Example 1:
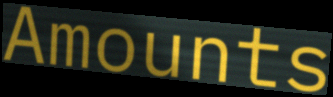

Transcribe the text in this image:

Amounts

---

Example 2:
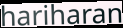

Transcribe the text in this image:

hariharan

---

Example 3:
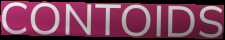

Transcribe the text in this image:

CONTOIDS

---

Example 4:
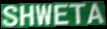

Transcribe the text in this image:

SHWETA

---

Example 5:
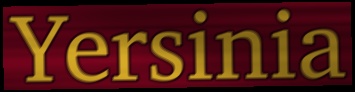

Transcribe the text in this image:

Yersinia